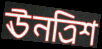
ঊনত্রিশ